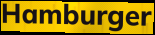
Hamburger